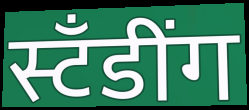
स्टँडींग